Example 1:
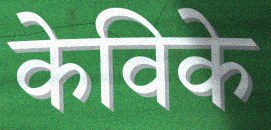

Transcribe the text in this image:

केविके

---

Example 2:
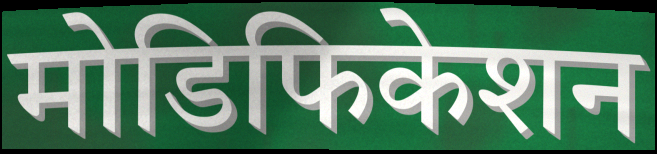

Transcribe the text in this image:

मोडिफिकेशन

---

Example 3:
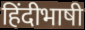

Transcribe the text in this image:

हिंदीभाषी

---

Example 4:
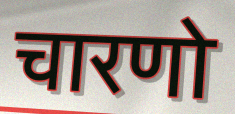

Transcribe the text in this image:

चारणो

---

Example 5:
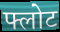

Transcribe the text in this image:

फ्लोट